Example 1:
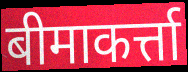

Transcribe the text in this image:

बीमाकर्त्ता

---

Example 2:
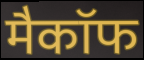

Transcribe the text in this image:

मैकॉफ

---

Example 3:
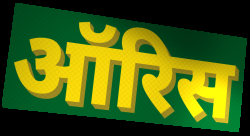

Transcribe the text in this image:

ऑरिस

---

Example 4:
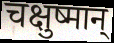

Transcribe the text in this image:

चक्षुष्मान्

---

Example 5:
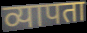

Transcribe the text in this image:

व्यापता